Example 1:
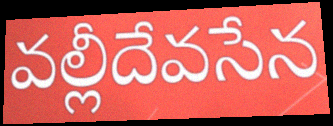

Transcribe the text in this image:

వల్లీదేవసేన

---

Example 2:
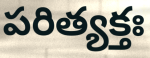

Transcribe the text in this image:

పరిత్యక్తః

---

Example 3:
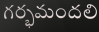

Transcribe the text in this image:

గర్భమందలి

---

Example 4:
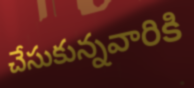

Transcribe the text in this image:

చేసుకున్నవారికి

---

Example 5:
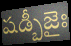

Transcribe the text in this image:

షడ్బీజైః